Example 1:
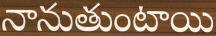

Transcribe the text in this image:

నానుతుంటాయి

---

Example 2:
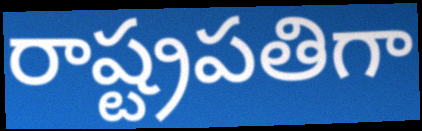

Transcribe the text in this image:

రాష్ట్రపతిగా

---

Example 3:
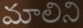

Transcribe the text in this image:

మాలిని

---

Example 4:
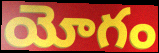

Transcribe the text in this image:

యోగం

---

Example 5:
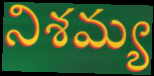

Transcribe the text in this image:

నిశమ్య